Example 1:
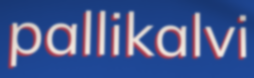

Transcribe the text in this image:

pallikalvi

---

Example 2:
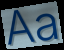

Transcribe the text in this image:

Aa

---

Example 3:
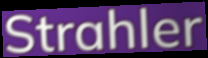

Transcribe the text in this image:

Strahler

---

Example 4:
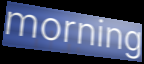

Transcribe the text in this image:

morning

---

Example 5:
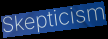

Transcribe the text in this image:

Skepticism